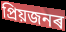
প্ৰিয়জনৰ